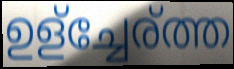
ഉള്ച്ചേര്ത്ത